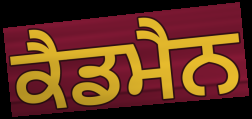
ਕੈਡਮੈਨ